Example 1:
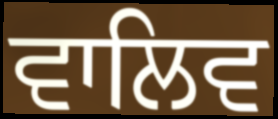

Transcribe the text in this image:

ਵਾਲਿਵ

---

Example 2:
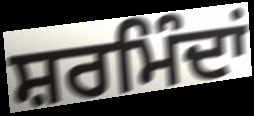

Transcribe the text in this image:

ਸ਼ਰਮਿੰਦਾਂ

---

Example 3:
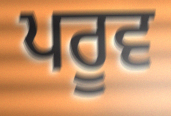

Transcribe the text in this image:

ਪਰੂਵ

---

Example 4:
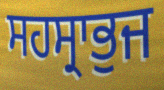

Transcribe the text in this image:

ਸਹਸ੍ਰਾਭੁਜ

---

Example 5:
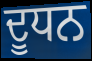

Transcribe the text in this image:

ਦੂਧਨ